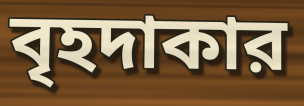
বৃহদাকার